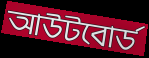
আউটবোর্ড